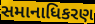
સમાનાધિકરણ